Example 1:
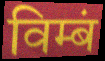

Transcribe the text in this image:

विम्बं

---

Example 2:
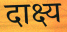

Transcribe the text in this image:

दाक्ष्य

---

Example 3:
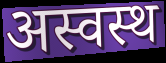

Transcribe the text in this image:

अस्वस्थ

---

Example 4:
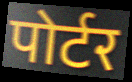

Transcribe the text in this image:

पोर्टर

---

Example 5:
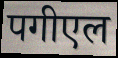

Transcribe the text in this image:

पगीएल